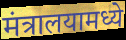
मंत्रालयामध्ये